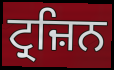
ਟ੍ਰਜ਼ਿਨ